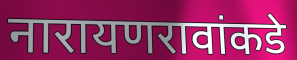
नारायणरावांकडे